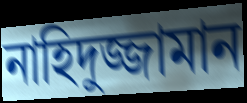
নাহিদুজ্জামান